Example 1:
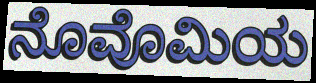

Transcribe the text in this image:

ನೊವೊಮಿಯ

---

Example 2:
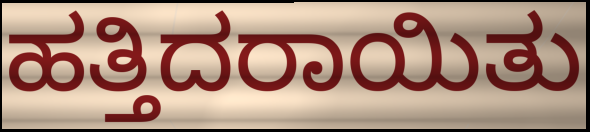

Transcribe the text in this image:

ಹತ್ತಿದರಾಯಿತು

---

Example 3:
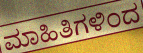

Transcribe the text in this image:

ಮಾಹಿತಿಗಳಿಂದ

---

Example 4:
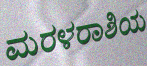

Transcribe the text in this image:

ಮರಳರಾಶಿಯ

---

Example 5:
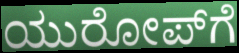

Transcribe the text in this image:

ಯುರೋಪ್‌ಗೆ